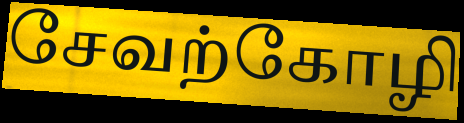
சேவற்கோழி